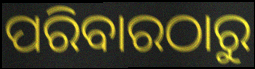
ପରିବାରଠାରୁ